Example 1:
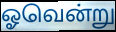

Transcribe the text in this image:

ஓவென்று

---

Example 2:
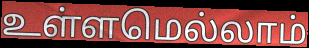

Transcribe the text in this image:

உள்ளமெல்லாம்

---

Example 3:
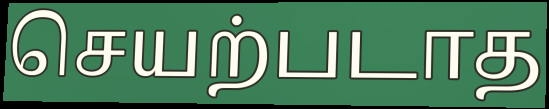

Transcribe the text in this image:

செயற்படாத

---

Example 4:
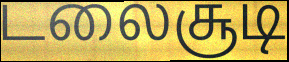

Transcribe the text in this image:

டலைசூடி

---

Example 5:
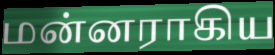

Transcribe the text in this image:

மன்னராகிய